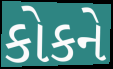
કોકને